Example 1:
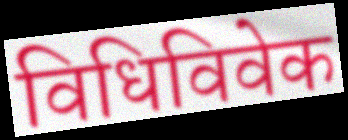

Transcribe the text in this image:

विधिविवेक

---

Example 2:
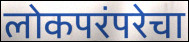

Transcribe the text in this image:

लोकपरंपरेचा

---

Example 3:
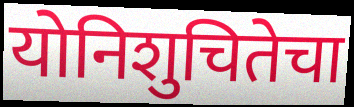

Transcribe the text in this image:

योनिशुचितेचा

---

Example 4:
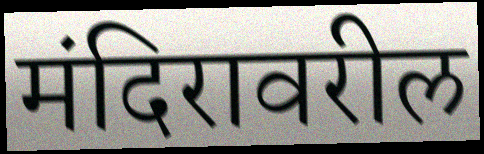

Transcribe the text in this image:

मंदिरावरील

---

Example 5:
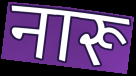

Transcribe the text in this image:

नारू